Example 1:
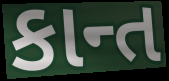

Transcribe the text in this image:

કાન્ત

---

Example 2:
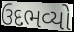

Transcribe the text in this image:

ઉદભવ્યો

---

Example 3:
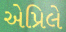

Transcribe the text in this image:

એપ્રિલે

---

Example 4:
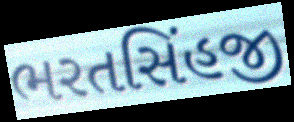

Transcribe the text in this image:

ભરતસિંહજી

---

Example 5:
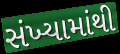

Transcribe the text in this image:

સંખ્યામાંથી